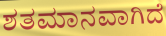
ಶತಮಾನವಾಗಿದೆ